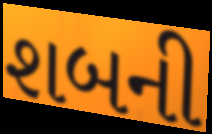
શબની